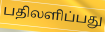
பதிலளிப்பது